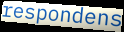
respondens